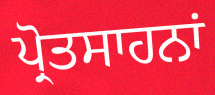
ਪ੍ਰੋਤਸਾਹਨਾਂ